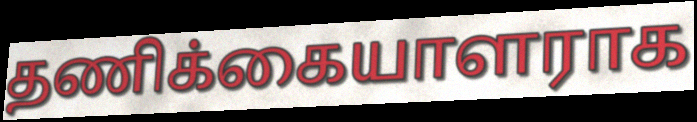
தணிக்கையாளராக